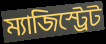
ম্যাজিস্ট্রেট